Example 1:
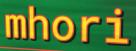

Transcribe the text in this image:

mhori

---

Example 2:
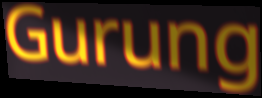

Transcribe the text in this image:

Gurung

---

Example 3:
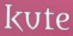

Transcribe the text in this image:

kute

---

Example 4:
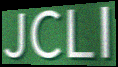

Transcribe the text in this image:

JCLI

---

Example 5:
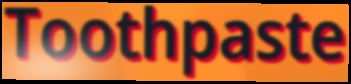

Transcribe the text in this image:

Toothpaste